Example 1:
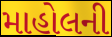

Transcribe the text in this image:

માહોલની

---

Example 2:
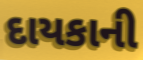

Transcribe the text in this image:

દાયકાની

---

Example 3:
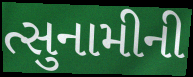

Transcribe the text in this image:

ત્સુનામીની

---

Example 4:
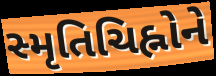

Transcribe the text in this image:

સ્મૃતિચિહ્નોને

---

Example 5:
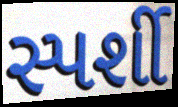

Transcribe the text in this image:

સ્પર્શી